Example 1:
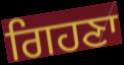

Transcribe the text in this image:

ਗਿਹਣਾ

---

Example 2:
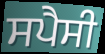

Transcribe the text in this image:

ਸਪੈਸੀ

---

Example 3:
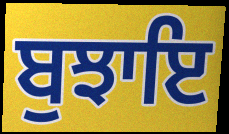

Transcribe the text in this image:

ਬੁਝਾਇ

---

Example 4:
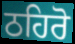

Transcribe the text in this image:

ਠਹਿਰੋ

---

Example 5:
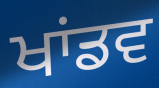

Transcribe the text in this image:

ਖਾਂਡਵ